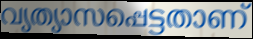
വ്യത്യാസപ്പെട്ടതാണ്